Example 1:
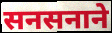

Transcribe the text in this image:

सनसनाने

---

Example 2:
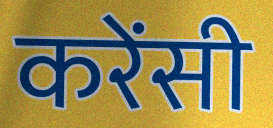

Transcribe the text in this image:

करेंसी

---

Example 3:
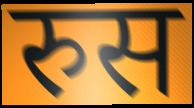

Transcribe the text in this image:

रुस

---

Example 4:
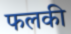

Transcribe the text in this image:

फलकी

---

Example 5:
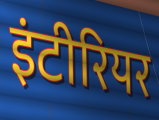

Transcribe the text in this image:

इंटीरियर